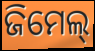
ଜିମେଲ୍